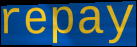
repay